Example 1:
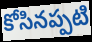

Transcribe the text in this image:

కోసినప్పటి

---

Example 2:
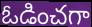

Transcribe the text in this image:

ఓడించగా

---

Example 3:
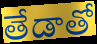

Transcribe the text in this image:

తేడాతో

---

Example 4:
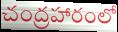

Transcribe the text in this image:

చంద్రహారంలో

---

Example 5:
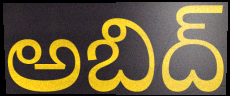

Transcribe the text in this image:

అబిద్